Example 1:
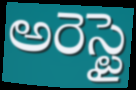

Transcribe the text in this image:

అరెస్టై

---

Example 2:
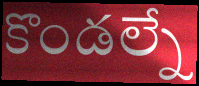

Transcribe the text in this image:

కొండల్నే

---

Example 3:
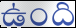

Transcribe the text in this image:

ఉంది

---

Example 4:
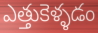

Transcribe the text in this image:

ఎత్తుకెళ్ళడం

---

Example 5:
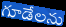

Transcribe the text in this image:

గూడేలను